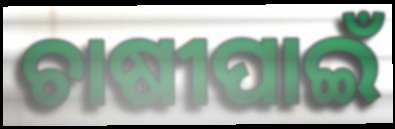
ଚାଷୀପାଇଁ